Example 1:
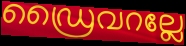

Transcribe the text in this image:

ഡ്രൈവറല്ലേ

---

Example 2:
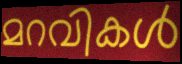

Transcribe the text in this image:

മറവികൾ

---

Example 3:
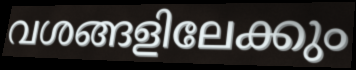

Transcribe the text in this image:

വശങ്ങളിലേക്കും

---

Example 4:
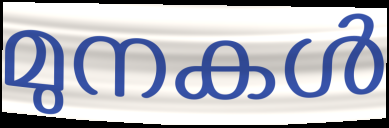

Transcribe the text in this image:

മുനകൾ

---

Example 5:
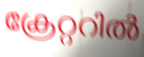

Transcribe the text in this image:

ക്രേറ്ററിൽ